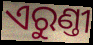
ଏରୁଣ୍ତୀ